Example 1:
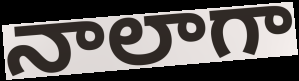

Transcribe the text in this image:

నాలాగా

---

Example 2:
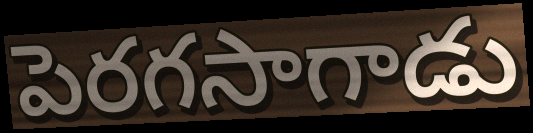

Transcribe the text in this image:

పెరగసాగాడు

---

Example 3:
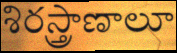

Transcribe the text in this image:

శిరస్త్రాణాలూ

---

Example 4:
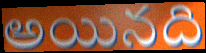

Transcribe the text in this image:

అయినది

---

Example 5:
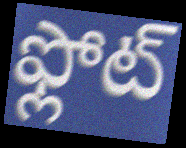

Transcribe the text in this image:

ఫ్లోట్